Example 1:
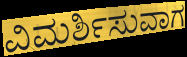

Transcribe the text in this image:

ವಿಮರ್ಶಿಸುವಾಗ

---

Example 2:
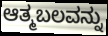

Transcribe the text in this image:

ಆತ್ಮಬಲವನ್ನು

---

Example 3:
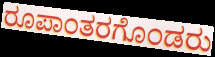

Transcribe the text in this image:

ರೂಪಾಂತರಗೊಂಡರು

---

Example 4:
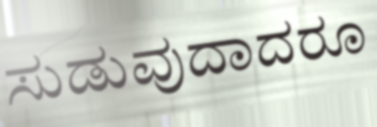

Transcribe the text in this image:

ಸುಡುವುದಾದರೂ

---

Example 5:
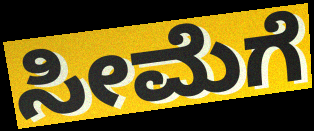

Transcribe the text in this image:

ಸೀಮೆಗೆ